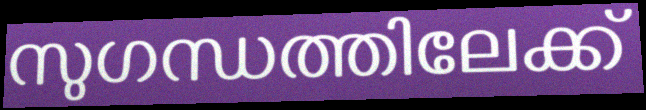
സുഗന്ധത്തിലേക്ക്